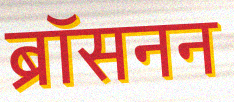
ब्रॉसनन